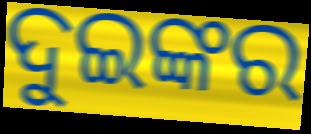
ଦୁଇଙ୍କର